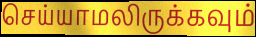
செய்யாமலிருக்கவும்